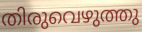
തിരുവെഴുത്തു